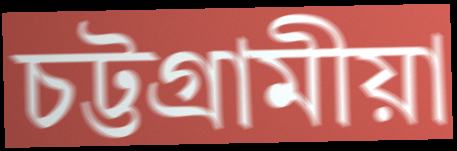
চট্টগ্ৰামীয়া